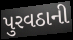
પુરવઠાની